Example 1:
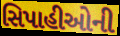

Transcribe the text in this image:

સિપાહીઓની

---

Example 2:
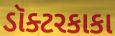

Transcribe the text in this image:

ડૉક્ટરકાકા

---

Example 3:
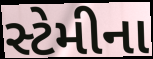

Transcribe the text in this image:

સ્ટેમીના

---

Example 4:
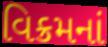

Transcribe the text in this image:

વિક્રમનાં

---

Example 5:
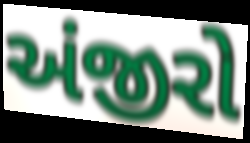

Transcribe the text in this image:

અંજીરો